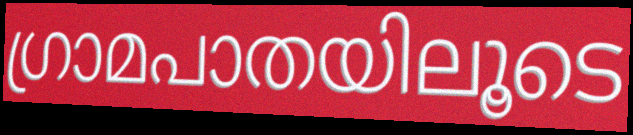
ഗ്രാമപാതയിലൂടെ